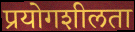
प्रयोगशीलता